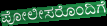
ಪೋಲೀಸರೊಂದಿಗೆ